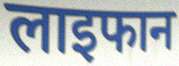
लाइफान